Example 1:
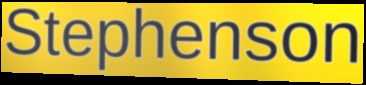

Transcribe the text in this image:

Stephenson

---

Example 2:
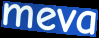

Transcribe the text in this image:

meva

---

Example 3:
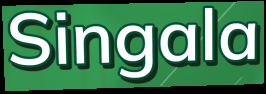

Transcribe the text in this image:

Singala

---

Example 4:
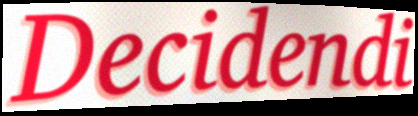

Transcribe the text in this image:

Decidendi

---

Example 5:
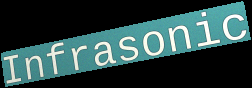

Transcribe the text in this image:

Infrasonic